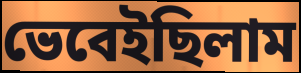
ভেবেইছিলাম